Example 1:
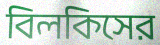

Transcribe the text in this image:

বিলকিসের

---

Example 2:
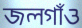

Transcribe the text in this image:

জলগাঁও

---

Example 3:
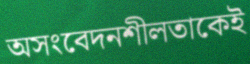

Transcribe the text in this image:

অসংবেদনশীলতাকেই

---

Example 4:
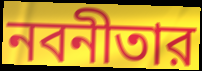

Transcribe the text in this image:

নবনীতার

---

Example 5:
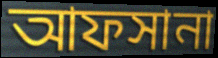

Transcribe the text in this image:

আফসানা